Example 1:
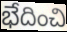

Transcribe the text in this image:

భేదించి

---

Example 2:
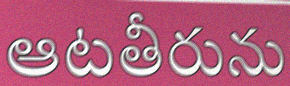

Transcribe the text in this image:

ఆటతీరును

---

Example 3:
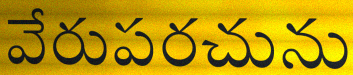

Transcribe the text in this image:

వేరుపరచును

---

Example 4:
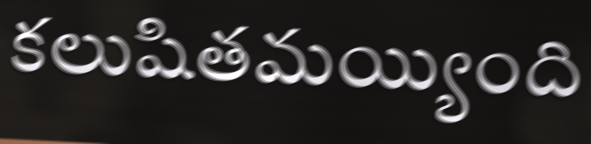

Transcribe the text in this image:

కలుషితమయ్యింది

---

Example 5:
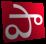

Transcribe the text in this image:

పా